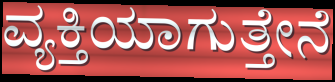
ವ್ಯಕ್ತಿಯಾಗುತ್ತೇನೆ